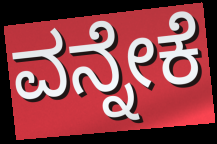
ವನ್ನೇಕೆ